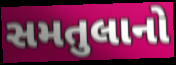
સમતુલાનો